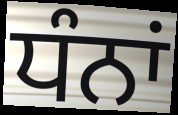
ਧੰਨਾਂ